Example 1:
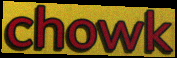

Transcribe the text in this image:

chowk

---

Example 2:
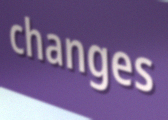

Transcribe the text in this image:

changes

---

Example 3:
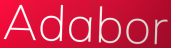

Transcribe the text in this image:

Adabor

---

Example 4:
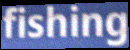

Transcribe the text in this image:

fishing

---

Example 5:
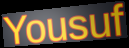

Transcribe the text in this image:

Yousuf